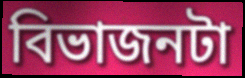
বিভাজনটা